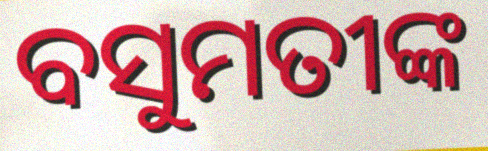
ବସୁମତୀଙ୍କ